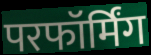
परफॉर्मिंग